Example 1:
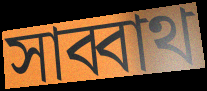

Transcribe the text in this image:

সাব্বাথ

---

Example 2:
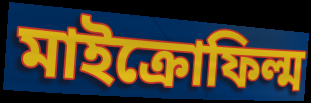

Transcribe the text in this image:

মাইক্রোফিল্ম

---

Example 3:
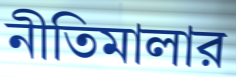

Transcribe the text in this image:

নীতিমালার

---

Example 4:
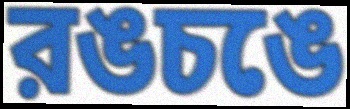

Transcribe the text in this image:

রঙচঙে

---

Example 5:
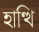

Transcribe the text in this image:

হাত্থি